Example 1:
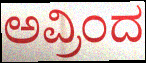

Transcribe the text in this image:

ಅವ್ರಿಂದ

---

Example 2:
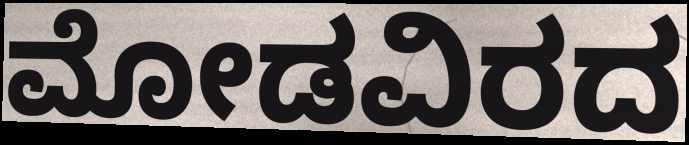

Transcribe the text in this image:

ಮೋಡವಿರದ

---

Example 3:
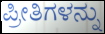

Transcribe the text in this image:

ಪ್ರೀತಿಗಳನ್ನು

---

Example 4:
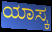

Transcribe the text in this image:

ಯಾಸ್ಕ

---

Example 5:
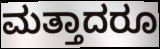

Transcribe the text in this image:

ಮತ್ತಾದರೂ